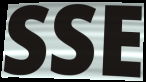
SSE